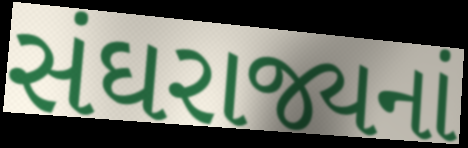
સંઘરાજ્યનાં